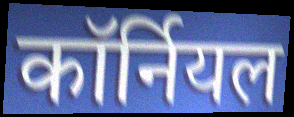
कॉर्नियल